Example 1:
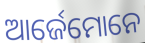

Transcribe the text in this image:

ଆର୍ଜେମୋନେ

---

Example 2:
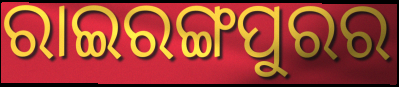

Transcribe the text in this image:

ରାଇରଙ୍ଗପୁରର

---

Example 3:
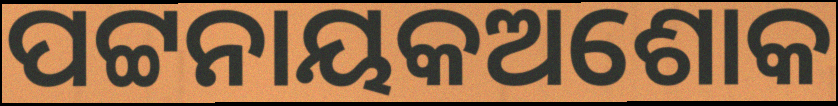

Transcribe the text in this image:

ପଟ୍ଟନାୟକଅଶୋକ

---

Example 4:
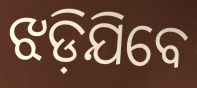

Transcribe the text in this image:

ଝଡ଼ିଯିବେ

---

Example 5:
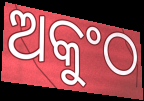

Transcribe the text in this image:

ଅକୁଂଠ